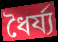
ধৈর্য্য